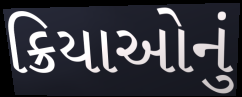
ક્રિયાઓનું